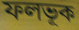
ফলভূক